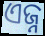
ଏଜ୍ନ